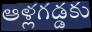
ఆళ్లగడ్డకు